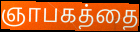
ஞாபகத்தை